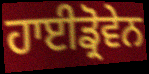
ਹਾਈਡ੍ਰੋਵੇਨ